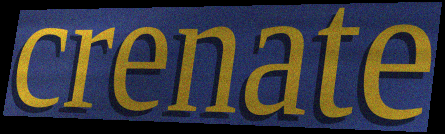
crenate